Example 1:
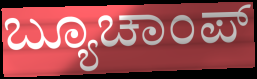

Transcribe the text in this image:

ಬ್ಯೂಚಾಂಪ್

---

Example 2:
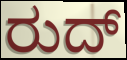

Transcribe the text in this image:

ರುದ್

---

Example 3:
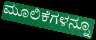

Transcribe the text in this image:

ಮೂಲಿಕೆಗಳನ್ನೂ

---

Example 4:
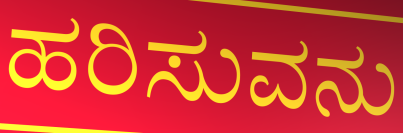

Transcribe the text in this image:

ಹರಿಸುವನು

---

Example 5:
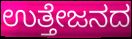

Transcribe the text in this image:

ಉತ್ತೇಜನದ